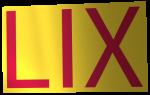
LIX